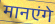
मानएंगे